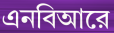
এনবিআরে